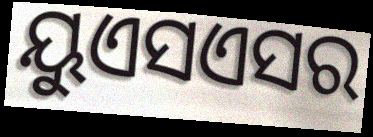
ୟୁଏସଏସର